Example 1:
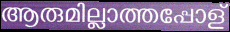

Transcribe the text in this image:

ആരുമില്ലാത്തപ്പോള്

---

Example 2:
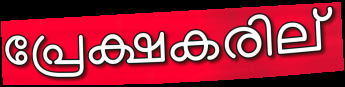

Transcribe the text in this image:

പ്രേക്ഷകരില്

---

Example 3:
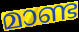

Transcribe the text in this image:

മാണ്ട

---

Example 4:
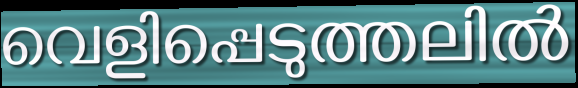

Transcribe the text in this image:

വെളിപ്പെടുത്തലിൽ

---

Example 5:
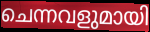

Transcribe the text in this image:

ചെന്നവളുമായി